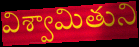
విశ్వామితుని